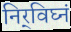
निर्विघ्नं